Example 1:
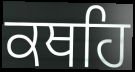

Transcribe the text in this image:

ਕਥਹਿ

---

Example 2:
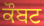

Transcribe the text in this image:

ਕੌਬਟ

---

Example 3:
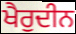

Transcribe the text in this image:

ਖੈਰੁਦੀਨ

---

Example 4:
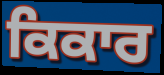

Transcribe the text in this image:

ਕਿਕਾਰ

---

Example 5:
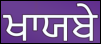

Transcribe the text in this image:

ਖਾਯਬੇ